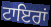
ਟਾਇਰਾਂ